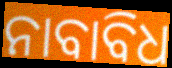
ନାବାବିଧ